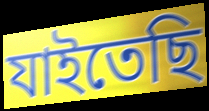
যাইতেছি